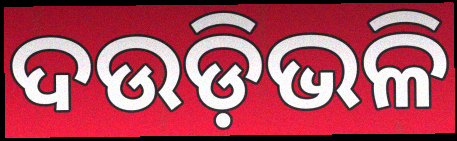
ଦଉଡ଼ିଭଳି